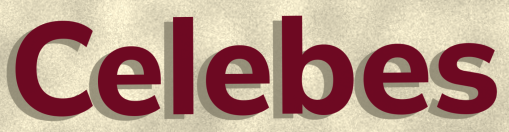
Celebes